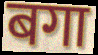
बगा